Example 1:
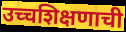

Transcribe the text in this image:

उच्चशिक्षणाची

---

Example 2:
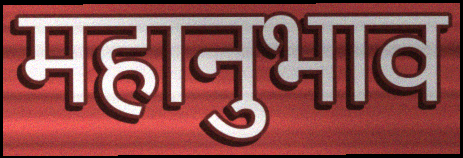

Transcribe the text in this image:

महानुभाव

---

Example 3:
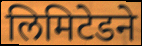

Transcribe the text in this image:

लिमिटेडने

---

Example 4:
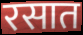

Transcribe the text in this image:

रसात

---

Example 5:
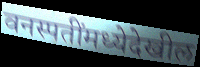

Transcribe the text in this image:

वनस्पतींमध्येदेखील